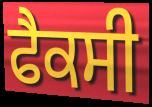
ਫੈਕਸੀ